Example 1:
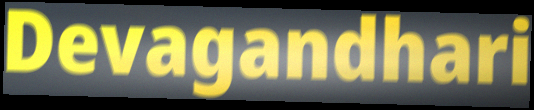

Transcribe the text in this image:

Devagandhari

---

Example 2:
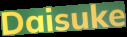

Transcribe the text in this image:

Daisuke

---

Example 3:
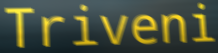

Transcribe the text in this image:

Triveni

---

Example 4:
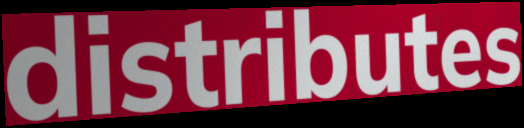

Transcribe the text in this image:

distributes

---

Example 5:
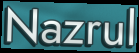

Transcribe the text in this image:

Nazrul